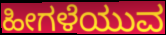
ಹೀಗಳೆಯುವ